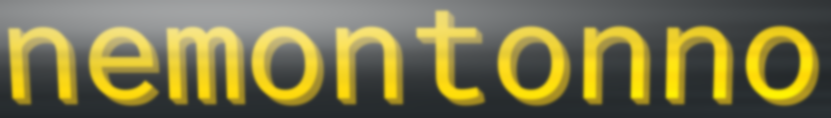
nemontonno